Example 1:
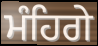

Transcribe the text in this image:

ਮੰਹਿਗੇ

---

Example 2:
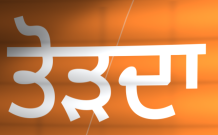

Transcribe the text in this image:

ਤੋੜਦਾ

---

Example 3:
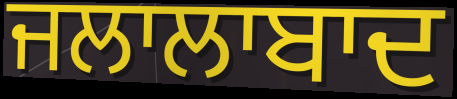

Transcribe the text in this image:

ਜਲਾਲਾਬਾਦ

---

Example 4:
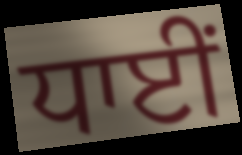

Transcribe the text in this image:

ਧਾਈਂ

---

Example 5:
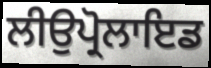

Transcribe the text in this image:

ਲੀਉਪ੍ਰੋਲਾਇਡ